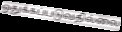
ஒதுக்கப்படுவதில்லை